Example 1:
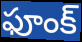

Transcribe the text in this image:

ఫూంక్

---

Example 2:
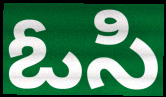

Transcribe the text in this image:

ఓసి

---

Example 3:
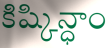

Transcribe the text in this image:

కిష్కిన్ధాం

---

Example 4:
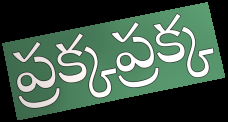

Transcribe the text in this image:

ప్రక్కప్రక్క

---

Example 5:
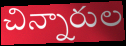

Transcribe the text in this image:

చిన్నారుల